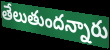
తేలుతుందన్నారు